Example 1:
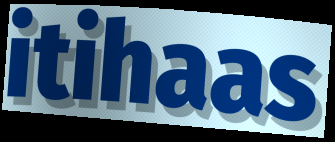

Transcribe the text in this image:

itihaas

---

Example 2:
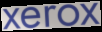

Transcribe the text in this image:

xerox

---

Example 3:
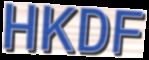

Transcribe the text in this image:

HKDF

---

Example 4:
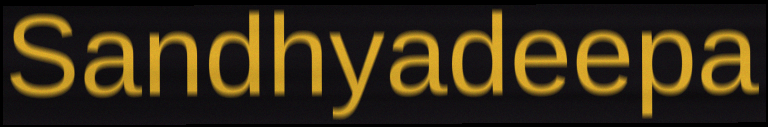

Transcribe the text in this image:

Sandhyadeepa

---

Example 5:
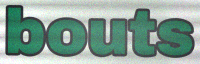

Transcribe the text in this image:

bouts